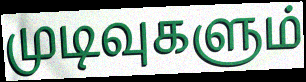
முடிவுகளும்